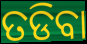
ତଡିବା